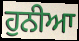
ਹੁਨੀਆ